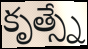
కృత్స్నే